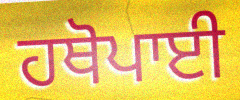
ਹਥੋਪਾਈ